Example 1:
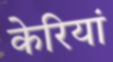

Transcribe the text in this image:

केरियां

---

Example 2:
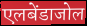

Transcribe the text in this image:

एलबेंडाजोल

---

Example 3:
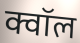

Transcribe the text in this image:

क्वॉल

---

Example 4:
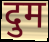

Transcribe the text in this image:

दुम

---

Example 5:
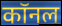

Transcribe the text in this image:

कॉनल